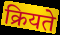
क्रियते